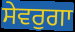
ਸੇਵਰੁਗਾ